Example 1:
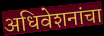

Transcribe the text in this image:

अधिवेशनांचा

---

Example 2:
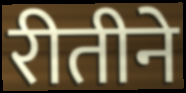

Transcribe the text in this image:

रीतीने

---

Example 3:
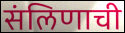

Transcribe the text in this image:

संलिणाची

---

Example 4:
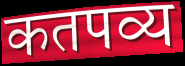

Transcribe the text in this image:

कतपव्य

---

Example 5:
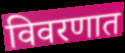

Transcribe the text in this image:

विवरणात